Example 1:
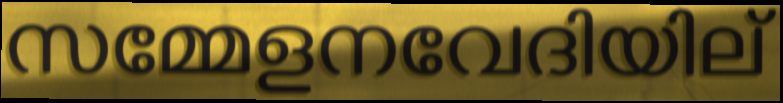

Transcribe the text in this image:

സമ്മേളനവേദിയില്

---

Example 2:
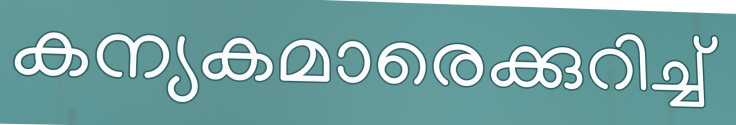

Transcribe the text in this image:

കന്യകമാരെക്കുറിച്ച്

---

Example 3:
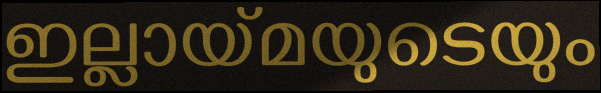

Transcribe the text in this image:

ഇല്ലായ്മയുടെയും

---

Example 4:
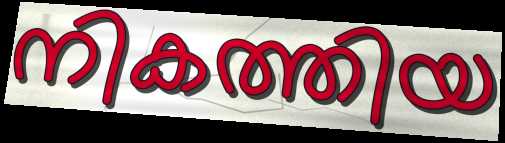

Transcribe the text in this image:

നികത്തിയ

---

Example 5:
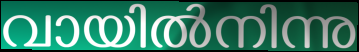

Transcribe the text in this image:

വായിൽനിന്നു